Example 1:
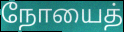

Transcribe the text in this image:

நோயைத்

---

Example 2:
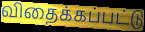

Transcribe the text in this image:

விதைக்கப்பட்டு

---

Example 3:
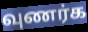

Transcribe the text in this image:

வுணர்க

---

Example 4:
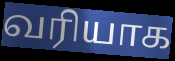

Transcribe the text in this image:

வரியாக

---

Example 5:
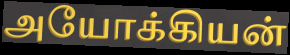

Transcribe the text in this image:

அயோக்கியன்